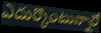
ఎదుర్కొంటున్నారో